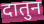
दातुन